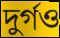
দুর্গও